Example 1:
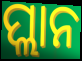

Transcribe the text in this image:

ପ୍ଲାନ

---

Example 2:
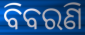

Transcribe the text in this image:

ବିବରଣି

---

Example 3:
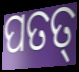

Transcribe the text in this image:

ପତତ୍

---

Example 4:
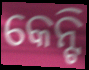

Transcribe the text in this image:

କେନ୍ଟି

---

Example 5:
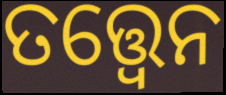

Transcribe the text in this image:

ତତ୍ତ୍ଵେନ